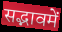
सद्भावमें